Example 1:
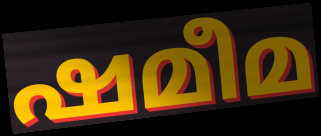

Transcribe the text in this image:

ഷമീമ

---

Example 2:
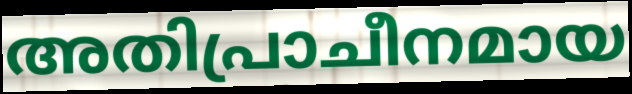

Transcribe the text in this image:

അതിപ്രാചീനമായ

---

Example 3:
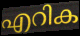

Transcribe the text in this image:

എറിക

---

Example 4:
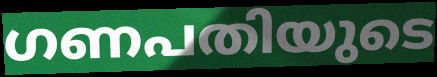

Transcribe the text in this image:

ഗണപതിയുടെ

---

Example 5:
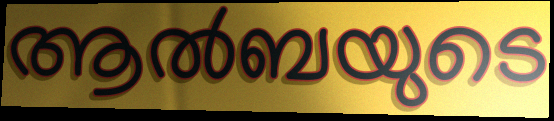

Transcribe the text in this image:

ആൽബയുടെ